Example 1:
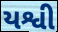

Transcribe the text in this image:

યશ્વી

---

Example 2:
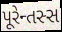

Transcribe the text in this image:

પૂરેન્તસ્સ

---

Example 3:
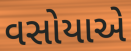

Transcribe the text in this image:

વસોયાએ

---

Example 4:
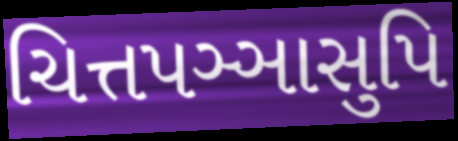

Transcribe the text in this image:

ચિત્તપઞ્ઞાસુપિ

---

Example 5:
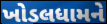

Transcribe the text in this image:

ખોડલધામને